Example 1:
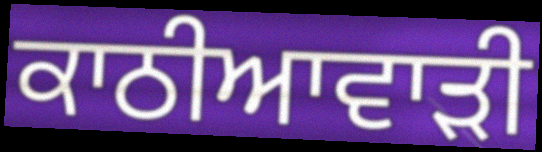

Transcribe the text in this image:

ਕਾਠੀਆਵਾੜੀ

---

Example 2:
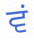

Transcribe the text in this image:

ਵਂ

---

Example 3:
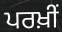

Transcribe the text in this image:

ਪਰਖ਼ੀਂ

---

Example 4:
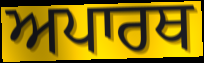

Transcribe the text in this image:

ਅਪਾਰਥ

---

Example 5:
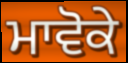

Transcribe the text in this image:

ਮਾਵੋਕੇ